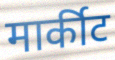
मार्कीट